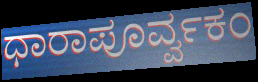
ಧಾರಾಪೂರ್ವ್ವಕಂ